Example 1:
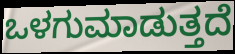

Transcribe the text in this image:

ಒಳಗುಮಾಡುತ್ತದೆ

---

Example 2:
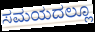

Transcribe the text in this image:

ಸಮಯದಲ್ಲೂ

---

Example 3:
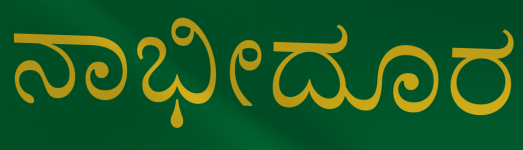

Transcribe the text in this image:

ನಾಭೀದೂರ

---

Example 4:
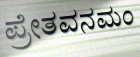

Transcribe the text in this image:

ಪ್ರೇತವನಮಂ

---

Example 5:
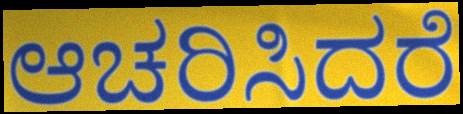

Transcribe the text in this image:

ಆಚರಿಸಿದರೆ